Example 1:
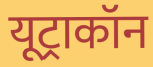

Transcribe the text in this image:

यूट्राकॉन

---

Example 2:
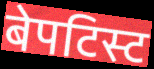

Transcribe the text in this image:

बेपटिस्ट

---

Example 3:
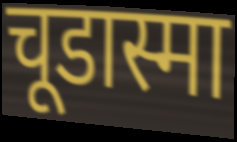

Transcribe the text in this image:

चूडास्मा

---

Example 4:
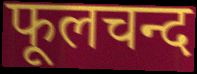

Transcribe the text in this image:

फूलचन्द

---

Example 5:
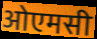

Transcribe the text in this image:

ओएमसी